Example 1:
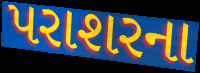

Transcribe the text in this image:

પરાશરના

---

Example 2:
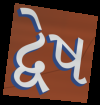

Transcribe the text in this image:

દ્વેષ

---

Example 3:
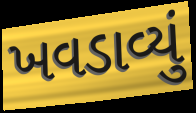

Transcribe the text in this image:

ખવડાવ્યું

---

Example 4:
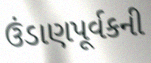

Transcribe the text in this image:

ઉંડાણપૂર્વકની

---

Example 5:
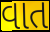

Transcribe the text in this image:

વાત